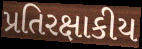
પ્રતિરક્ષાકીય